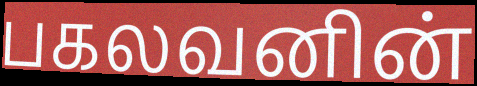
பகலவனின்